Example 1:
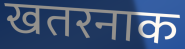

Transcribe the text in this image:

खतरनाक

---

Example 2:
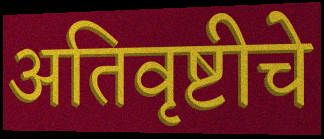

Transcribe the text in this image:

अतिवृष्टीचे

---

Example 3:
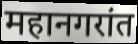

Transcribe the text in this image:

महानगरांत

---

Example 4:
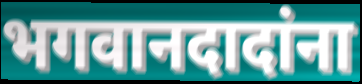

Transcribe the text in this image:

भगवानदादांना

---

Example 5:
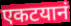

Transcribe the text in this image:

एकटयानं